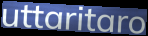
uttaritaro